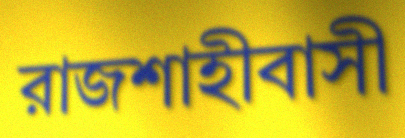
রাজশাহীবাসী